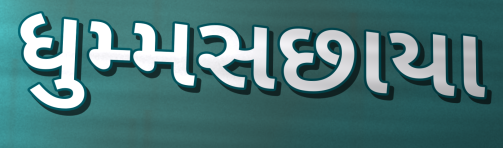
ધુમ્મસછાયા